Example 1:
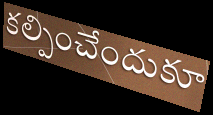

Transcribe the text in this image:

కల్పించేందుకూ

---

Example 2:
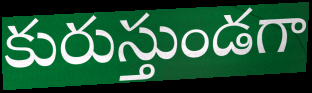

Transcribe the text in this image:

కురుస్తుండగా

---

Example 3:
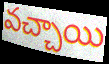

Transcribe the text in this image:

వచ్చాయి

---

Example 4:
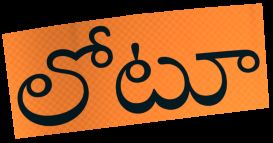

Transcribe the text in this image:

లోటూ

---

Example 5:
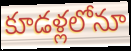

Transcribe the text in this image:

కూడళ్లలోనూ